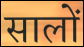
सालों